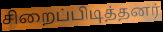
சிறைப்பிடித்தனர்